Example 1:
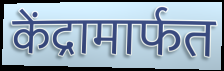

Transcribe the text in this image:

केंद्रामार्फत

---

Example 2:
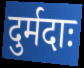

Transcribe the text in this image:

दुर्मदाः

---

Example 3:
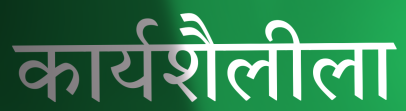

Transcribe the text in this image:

कार्यशैलीला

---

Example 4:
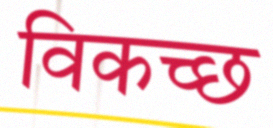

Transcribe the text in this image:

विकच्छ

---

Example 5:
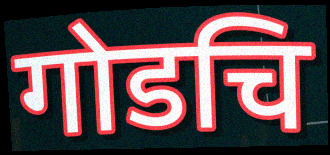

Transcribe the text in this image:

गोडचि